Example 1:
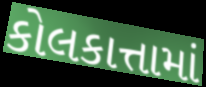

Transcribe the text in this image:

કોલકાત્તામાં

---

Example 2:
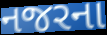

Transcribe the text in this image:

નજરના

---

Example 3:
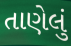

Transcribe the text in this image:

તાણેલું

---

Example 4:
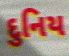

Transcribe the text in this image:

દુનિય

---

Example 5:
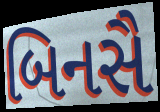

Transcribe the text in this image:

બિનસૈ